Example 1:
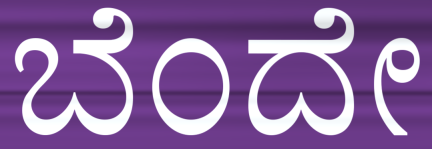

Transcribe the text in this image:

ಬೆಂದೇ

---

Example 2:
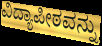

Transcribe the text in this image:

ವಿದ್ಯಾಪೀಠವನ್ನು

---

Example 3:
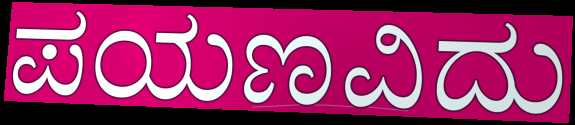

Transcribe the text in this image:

ಪಯಣವಿದು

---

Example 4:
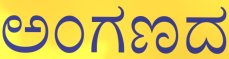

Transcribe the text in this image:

ಅಂಗಣದ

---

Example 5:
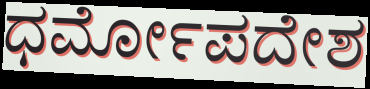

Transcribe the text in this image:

ಧರ್ಮೋಪದೇಶ